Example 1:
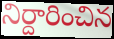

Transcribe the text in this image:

నిర్దారించిన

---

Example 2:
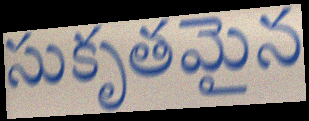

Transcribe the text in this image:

సుకృతమైన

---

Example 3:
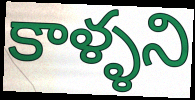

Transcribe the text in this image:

కాళ్ళని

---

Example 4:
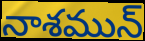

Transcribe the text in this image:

నాశమున్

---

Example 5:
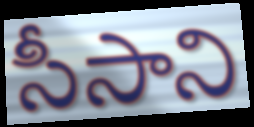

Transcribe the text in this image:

సీసాని